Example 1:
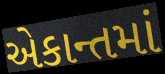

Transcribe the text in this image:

એકાન્તમાં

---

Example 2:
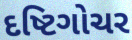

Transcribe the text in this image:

દષ્ટિગોચર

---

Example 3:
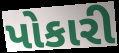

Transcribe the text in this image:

પોકારી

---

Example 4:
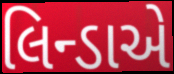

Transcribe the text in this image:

લિન્ડાએ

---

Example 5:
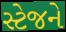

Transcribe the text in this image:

સ્ટેજને